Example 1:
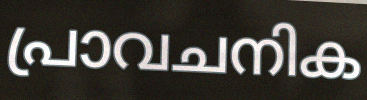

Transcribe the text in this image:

പ്രാവചനിക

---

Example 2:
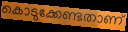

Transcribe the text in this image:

കൊടുക്കേണ്ടതാണ്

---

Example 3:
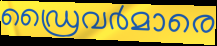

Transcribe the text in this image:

ഡ്രൈവർമാരെ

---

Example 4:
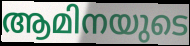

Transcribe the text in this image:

ആമിനയുടെ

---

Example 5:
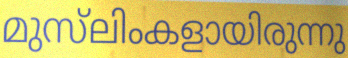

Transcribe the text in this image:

മുസ്‌ലിംകളായിരുന്നു